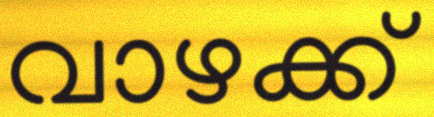
വാഴക്ക്